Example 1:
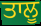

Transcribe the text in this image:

ਤਾਲੂ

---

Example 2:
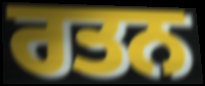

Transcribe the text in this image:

ਰਤਨ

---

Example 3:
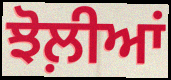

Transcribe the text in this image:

ਝੋਲ਼ੀਆਂ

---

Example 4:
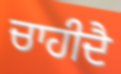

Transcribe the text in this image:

ਚਾਹੀਦੈ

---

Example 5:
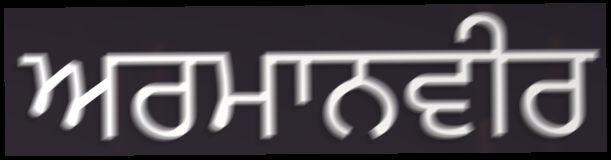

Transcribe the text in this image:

ਅਰਮਾਨਵੀਰ